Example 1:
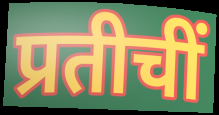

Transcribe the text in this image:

प्रतीचीं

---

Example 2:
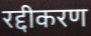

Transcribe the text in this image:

रद्दीकरण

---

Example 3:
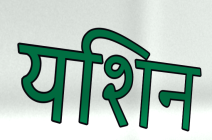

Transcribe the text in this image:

यशिन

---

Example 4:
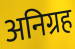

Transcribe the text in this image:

अनिग्रह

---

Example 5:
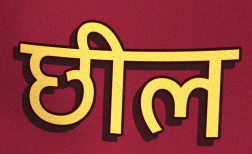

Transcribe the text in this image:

छील